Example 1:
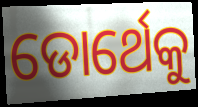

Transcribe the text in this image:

ଡୋର୍ଥେକୁ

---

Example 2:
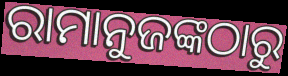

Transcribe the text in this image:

ରାମାନୁଜଙ୍କଠାରୁ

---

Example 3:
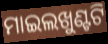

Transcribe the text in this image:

ମାଇଲଖୁଣ୍ଟଟି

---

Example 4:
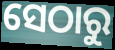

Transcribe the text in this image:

ସେଠାରୁ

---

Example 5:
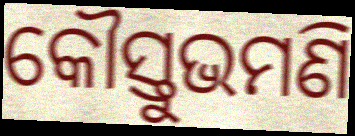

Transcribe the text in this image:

କୌସ୍ତୁଭମଣି